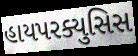
હાયપરક્યુસિસ